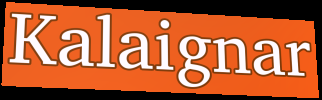
Kalaignar